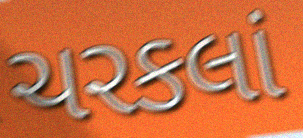
ચરકલાં